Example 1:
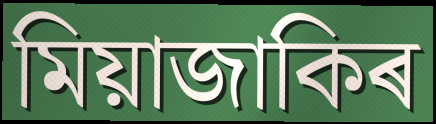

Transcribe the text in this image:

মিয়াজাকিৰ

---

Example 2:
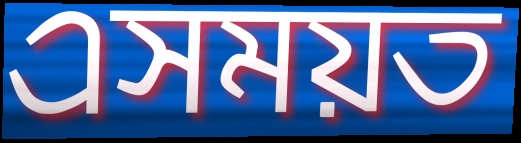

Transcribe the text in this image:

এসময়ত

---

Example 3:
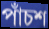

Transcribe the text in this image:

পাঁচশ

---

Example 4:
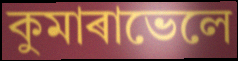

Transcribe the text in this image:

কুমাৰাভেলে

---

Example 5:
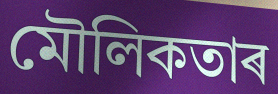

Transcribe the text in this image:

মৌলিকতাৰ